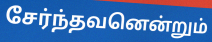
சேர்ந்தவனென்றும்